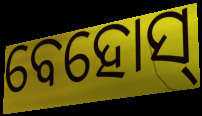
ବେହୋସ୍